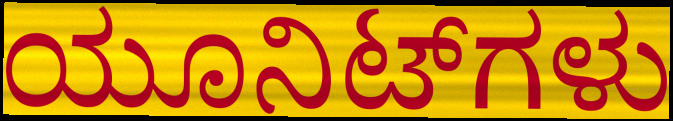
ಯೂನಿಟ್‌ಗಳು